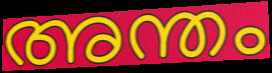
അന്തം